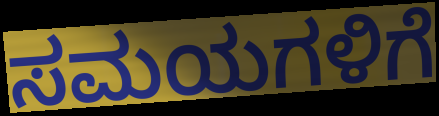
ಸಮಯಗಳಿಗೆ